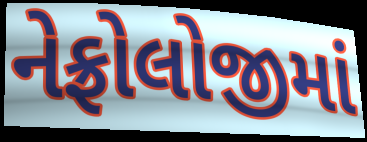
નેફ્રોલોજીમાં